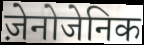
ज़ेनोजेनिक